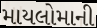
માયલોમાની